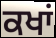
ਕਖਾਂ